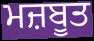
ਮਜ਼ਬੂਤ